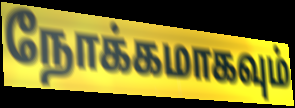
நோக்கமாகவும்